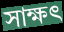
সাক্ষৎ